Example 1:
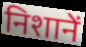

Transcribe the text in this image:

निशानें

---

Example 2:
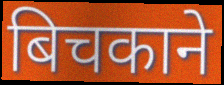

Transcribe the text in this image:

बिचकाने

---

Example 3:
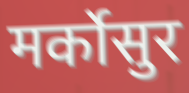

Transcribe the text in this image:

मर्कोसुर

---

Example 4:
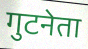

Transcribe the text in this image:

गुटनेता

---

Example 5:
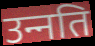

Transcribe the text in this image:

उन्‍नति